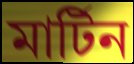
মার্টিন